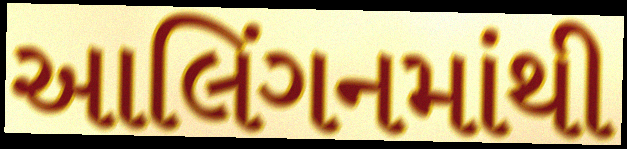
આલિંગનમાંથી